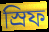
স্রিফ